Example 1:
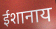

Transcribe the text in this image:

ईशानाय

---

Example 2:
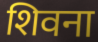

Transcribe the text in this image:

शिवना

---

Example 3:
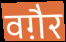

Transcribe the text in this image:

वग़ैर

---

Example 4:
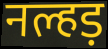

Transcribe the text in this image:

नल्हड़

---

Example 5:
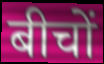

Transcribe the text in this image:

बीचों